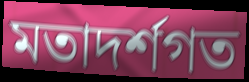
মতাদৰ্শগত